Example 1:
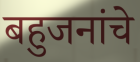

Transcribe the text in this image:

बहुजनांचे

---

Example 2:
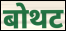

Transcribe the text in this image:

बोथट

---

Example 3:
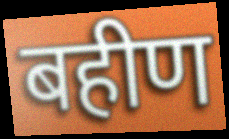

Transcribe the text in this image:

बहीण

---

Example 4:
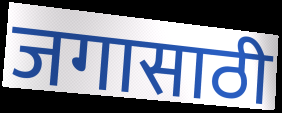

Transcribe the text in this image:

जगासाठी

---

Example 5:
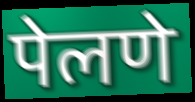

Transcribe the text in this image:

पेलणे